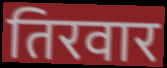
तिरवार